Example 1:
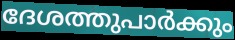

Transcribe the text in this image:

ദേശത്തുപാർക്കും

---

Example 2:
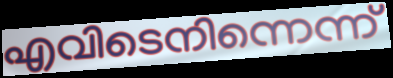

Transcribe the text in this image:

എവിടെനിന്നെന്ന്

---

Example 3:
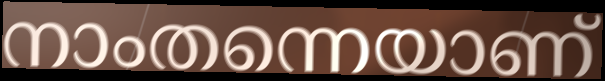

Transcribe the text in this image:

നാംതന്നെയാണ്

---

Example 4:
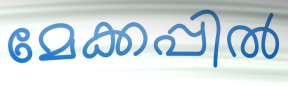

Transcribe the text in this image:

മേക്കപ്പിൽ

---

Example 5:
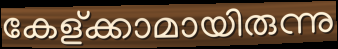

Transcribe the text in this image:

കേള്ക്കാമായിരുന്നു